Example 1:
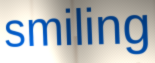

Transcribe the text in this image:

smiling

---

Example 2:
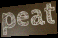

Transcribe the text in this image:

peat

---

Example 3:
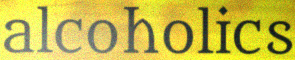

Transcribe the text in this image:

alcoholics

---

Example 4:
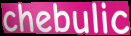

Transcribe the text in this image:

chebulic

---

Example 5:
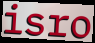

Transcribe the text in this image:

isro